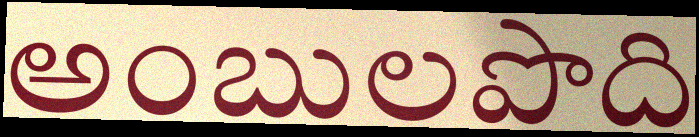
అంబులపొది